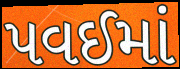
પવઈમાં